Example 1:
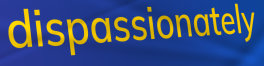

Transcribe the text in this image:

dispassionately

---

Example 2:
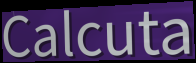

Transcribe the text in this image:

Calcuta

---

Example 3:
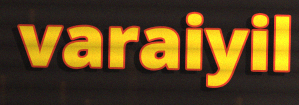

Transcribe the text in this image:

varaiyil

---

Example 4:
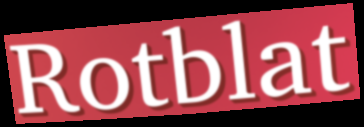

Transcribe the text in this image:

Rotblat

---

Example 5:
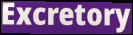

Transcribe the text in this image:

Excretory